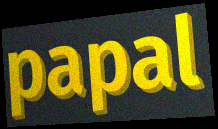
papal